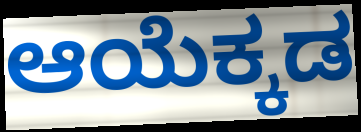
ಆಯೆಕ್ಕಡ